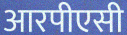
आरपीएसी